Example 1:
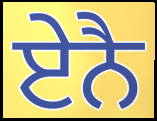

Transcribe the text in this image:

ਏਨੈ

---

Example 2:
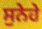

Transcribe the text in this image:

ਸੁਨੇਹੇ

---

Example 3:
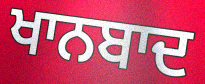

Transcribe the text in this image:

ਖਾਨਬਾਦ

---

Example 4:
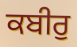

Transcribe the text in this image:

ਕਬੀਰੁ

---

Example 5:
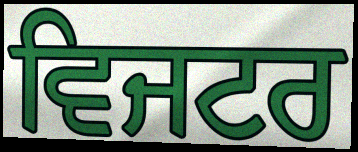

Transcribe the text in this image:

ਵਿਜਟਰ